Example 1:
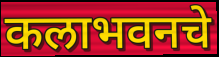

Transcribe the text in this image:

कलाभवनचे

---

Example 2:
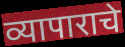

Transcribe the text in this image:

व्यापाराचे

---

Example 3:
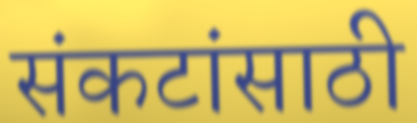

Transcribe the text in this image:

संकटांसाठी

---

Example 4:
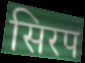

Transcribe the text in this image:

सिरप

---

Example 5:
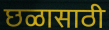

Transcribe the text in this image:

छळासाठी